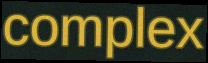
complex